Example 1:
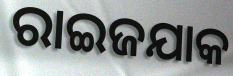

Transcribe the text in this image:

ରାଇଜଯାକ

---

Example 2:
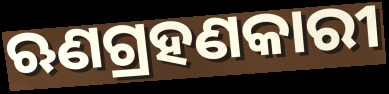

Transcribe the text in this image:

ଋଣଗ୍ରହଣକାରୀ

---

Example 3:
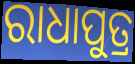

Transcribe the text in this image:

ରାଧାପୁତ୍ର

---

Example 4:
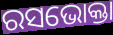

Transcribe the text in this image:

ରସଭୋକ୍ତା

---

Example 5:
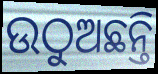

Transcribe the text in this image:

ଉଠୁଅଛନ୍ତି